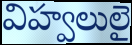
విహ్వలులై